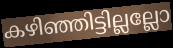
കഴിഞ്ഞിട്ടില്ലല്ലോ